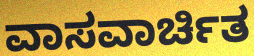
ವಾಸವಾರ್ಚಿತ